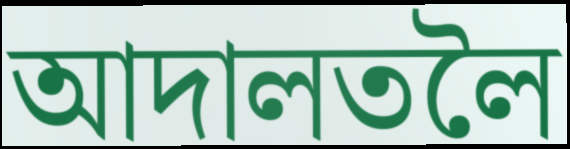
আদালতলৈ